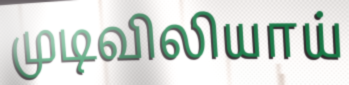
முடிவிலியாய்